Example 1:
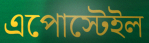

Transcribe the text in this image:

এপোস্টেইল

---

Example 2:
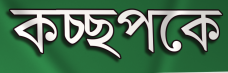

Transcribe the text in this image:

কচ্ছপকে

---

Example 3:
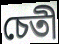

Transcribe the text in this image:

চেতী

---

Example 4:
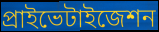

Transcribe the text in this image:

প্রাইভেটাইজেশন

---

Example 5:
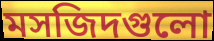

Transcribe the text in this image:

মসজিদগুলো